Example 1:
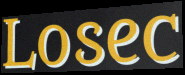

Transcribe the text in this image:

Losec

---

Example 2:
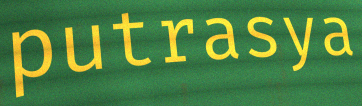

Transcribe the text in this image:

putrasya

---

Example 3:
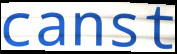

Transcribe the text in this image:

canst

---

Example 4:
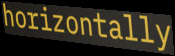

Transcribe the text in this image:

horizontally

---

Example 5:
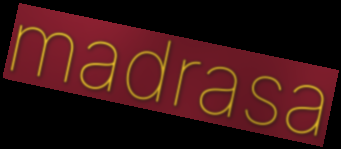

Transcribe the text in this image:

madrasa